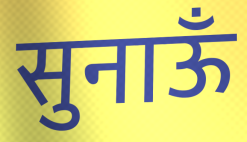
सुनाऊँ